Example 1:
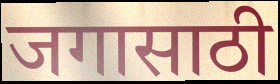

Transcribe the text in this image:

जगासाठी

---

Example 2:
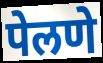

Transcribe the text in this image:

पेलणे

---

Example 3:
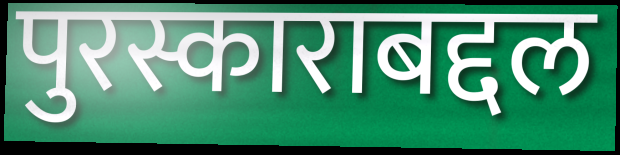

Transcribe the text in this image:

पुरस्काराबद्दल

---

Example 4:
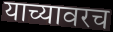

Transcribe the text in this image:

याच्यावरच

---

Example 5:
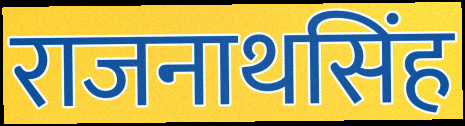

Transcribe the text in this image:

राजनाथसिंह